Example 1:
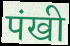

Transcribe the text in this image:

पंखी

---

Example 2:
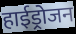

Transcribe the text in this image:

हाईड्रोजन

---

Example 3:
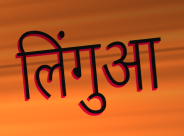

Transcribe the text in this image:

लिंगुआ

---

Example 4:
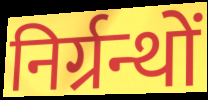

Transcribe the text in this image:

निर्ग्रन्थों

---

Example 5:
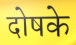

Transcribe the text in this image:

दोषके